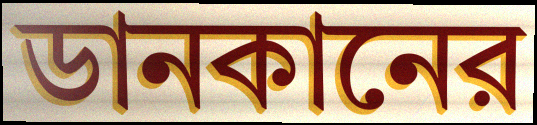
ডানকানের